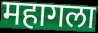
महागला